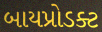
બાયપ્રોડક્ટ